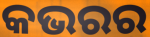
କଭରର